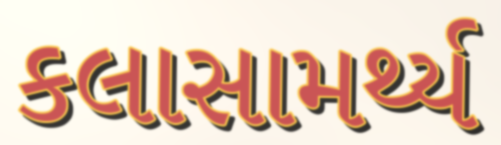
કલાસામર્થ્ય